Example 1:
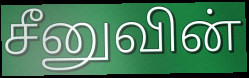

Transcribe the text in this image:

சீனுவின்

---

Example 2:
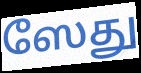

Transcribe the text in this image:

ஸேது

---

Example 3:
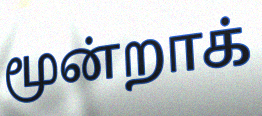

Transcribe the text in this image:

மூன்றாக்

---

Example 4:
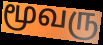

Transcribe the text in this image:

மூவரு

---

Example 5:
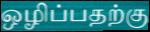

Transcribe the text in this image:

ஒழிப்பதற்கு